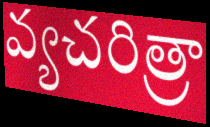
వ్యచరిత్రా